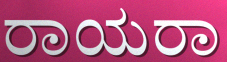
ರಾಯರಾ